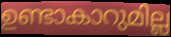
ഉണ്ടാകാറുമില്ല